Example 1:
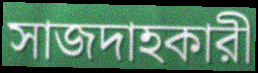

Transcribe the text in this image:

সাজদাহকারী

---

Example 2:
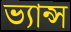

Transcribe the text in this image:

ভ্যান্স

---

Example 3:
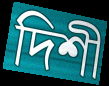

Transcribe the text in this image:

দিশী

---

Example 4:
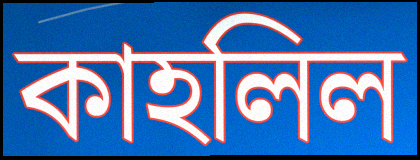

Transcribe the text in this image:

কাহলিল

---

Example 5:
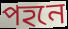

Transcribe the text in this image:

পহনে